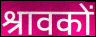
श्रावकों